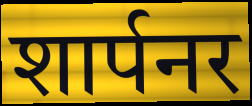
शार्पनर